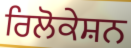
ਰਿਲੋਕੇਸ਼ਨ